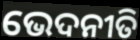
ଭେଦନୀତି